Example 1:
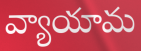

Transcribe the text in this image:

వ్యాయామ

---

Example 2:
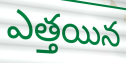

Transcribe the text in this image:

ఎత్తయిన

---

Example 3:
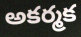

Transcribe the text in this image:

అకర్మక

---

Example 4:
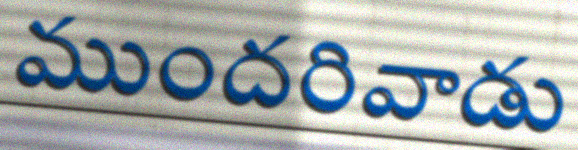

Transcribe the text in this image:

ముందరివాడు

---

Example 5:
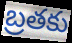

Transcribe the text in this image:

బ్రతకు